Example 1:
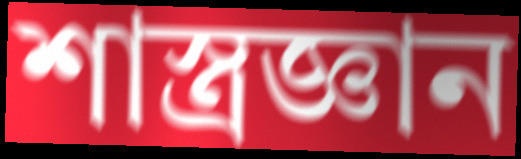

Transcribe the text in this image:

শাস্ত্রজ্ঞান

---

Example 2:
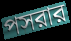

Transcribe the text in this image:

পসরার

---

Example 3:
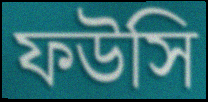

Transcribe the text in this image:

ফউসি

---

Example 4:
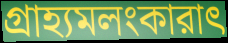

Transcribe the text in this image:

গ্রাহ্যমলংকারাৎ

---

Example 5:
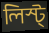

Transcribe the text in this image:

লিস্ট্